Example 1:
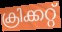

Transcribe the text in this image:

ക്രിക്കറ്റ്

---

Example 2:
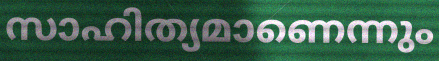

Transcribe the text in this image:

സാഹിത്യമാണെന്നും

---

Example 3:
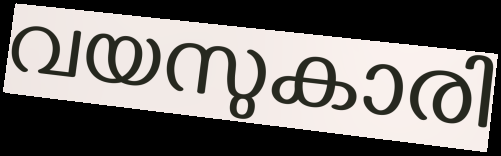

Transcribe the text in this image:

വയസുകാരി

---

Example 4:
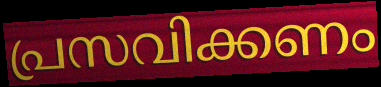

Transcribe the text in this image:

പ്രസവിക്കണം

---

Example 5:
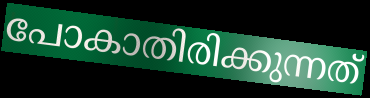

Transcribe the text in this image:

പോകാതിരിക്കുന്നത്